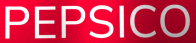
PEPSICO